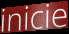
inicie